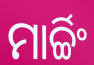
ମାର୍ଚ୍ଚିଂ